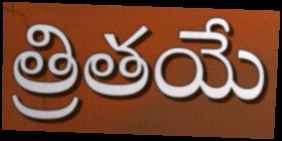
త్రితయే